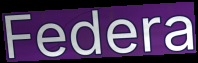
Federa